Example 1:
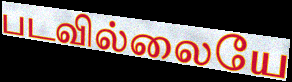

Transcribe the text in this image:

படவில்லையே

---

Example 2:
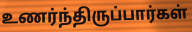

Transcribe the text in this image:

உணர்ந்திருப்பார்கள்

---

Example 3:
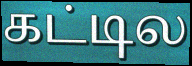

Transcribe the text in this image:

கட்டில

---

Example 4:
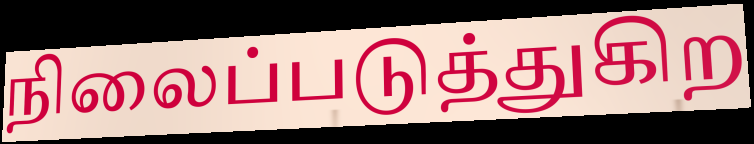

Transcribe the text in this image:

நிலைப்படுத்துகிற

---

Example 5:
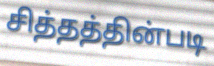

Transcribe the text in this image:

சித்தத்தின்படி